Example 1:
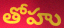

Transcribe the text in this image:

తోహు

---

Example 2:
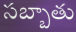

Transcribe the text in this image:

సబ్బాతు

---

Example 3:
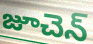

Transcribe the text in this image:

జూచెన్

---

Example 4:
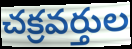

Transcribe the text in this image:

చక్రవర్తుల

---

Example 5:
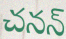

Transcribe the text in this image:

చనన్